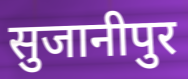
सुजानीपुर